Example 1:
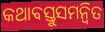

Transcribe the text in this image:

କଥାବସ୍ତୁସମନ୍ୱିତ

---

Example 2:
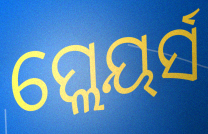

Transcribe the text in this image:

ପ୍ଲେୟର୍ସ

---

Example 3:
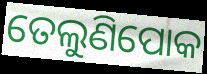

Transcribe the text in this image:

ତେଲୁଣିପୋକ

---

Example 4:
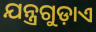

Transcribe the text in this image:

ଯନ୍ତ୍ରଗୁଡ଼ାଏ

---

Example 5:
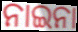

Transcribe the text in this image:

ନାଇନା